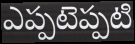
ఎప్పటెప్పటి